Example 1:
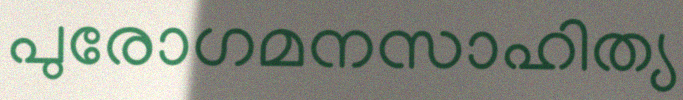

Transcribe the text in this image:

പുരോഗമനസാഹിത്യ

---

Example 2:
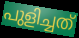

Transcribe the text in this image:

പുളിച്ചത്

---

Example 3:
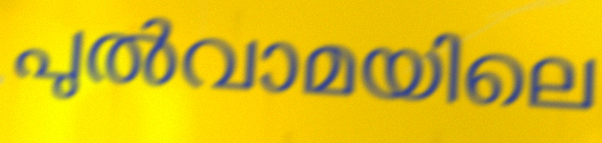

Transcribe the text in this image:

പുൽവാമയിലെ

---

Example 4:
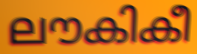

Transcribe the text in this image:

ലൗകികീ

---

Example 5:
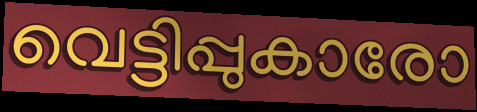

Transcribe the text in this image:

വെട്ടിപ്പുകാരോ